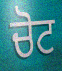
ਚੋਟ